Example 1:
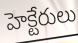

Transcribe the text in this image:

హెక్టేరులు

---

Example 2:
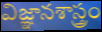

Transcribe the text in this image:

విజ్ఞానశాస్త్రం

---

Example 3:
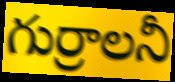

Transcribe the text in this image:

గుర్రాలనీ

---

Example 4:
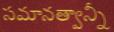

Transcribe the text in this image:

సమానత్వాన్నీ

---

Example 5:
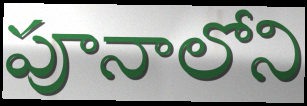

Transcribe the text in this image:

పూనాలోని